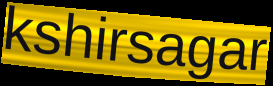
kshirsagar